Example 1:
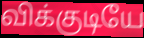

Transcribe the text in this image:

விக்குடியே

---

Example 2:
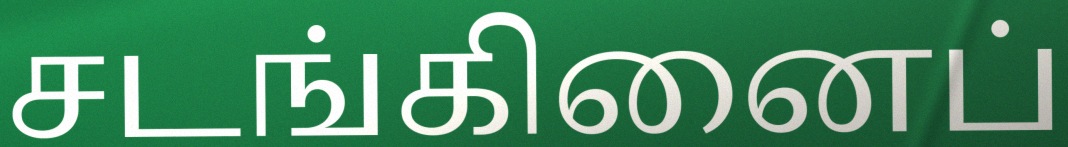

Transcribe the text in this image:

சடங்கினைப்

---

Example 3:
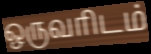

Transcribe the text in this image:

ஒருவரிடம்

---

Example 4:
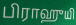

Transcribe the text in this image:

பிராஹுயி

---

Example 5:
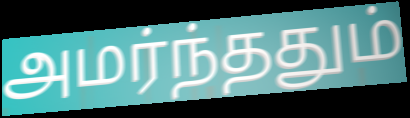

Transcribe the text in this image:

அமர்ந்ததும்